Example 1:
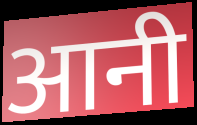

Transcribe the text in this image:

आनी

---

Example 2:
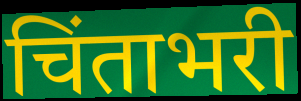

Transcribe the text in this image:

चिंताभरी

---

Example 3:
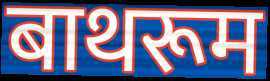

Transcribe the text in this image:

बाथरूम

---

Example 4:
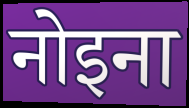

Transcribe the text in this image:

नोइना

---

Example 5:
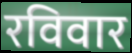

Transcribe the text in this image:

रविवार